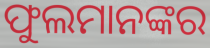
ଫୁଲମାନଙ୍କର